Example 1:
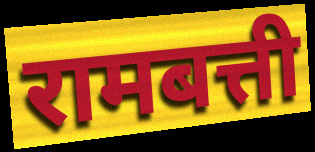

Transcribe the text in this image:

रामबत्ती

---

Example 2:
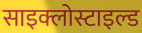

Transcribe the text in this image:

साइक्लोस्टाइल्ड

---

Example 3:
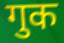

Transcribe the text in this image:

गुक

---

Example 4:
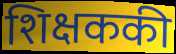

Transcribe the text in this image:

शिक्षककी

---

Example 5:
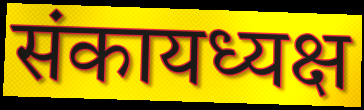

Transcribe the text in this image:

संकायध्यक्ष